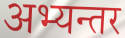
अभ्यन्तर